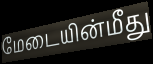
மேடையின்மீது